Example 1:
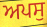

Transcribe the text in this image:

ਅਪਸੁ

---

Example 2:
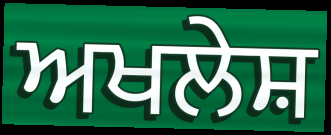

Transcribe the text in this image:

ਅਖਲੇਸ਼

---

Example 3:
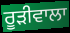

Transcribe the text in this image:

ਰੂਡ਼ੀਵਾਲਾ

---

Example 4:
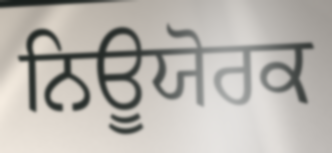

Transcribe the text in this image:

ਨਿਊਯੋਰਕ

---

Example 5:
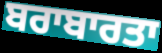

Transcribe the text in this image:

ਬਰਾਬਾਰਤਾ